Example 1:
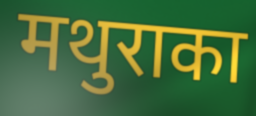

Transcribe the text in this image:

मथुराका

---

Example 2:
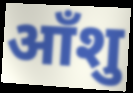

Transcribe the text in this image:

आँशु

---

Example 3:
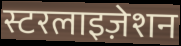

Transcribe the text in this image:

स्टरलाइज़ेशन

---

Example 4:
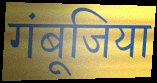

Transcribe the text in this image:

गंबूजिया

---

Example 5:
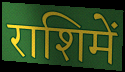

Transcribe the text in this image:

राशिमें